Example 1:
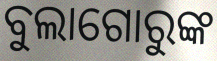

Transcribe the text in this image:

ବୁଲାଗୋରୁଙ୍କ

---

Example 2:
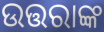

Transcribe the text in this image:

ଉତ୍ତରାଙ୍କ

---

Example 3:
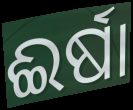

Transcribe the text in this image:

ଈର୍ଷା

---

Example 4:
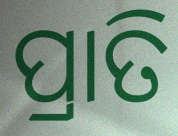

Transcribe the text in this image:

ପ୍ରାତି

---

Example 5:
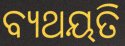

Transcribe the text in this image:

ବ୍ୟଥୟତି